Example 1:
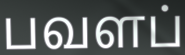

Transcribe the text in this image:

பவளப்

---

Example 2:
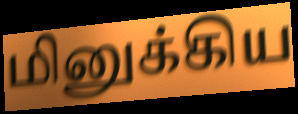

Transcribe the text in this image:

மினுக்கிய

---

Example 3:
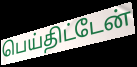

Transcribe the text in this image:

பெய்திட்டேன்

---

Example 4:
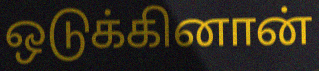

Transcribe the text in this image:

ஒடுக்கினான்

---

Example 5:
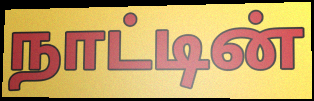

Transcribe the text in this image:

நாட்டின்